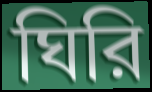
ঘিরি